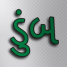
ડુંબ